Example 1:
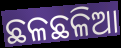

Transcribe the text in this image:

ଛଳଛଳିଆ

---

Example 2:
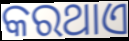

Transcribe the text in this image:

କରଥାଏ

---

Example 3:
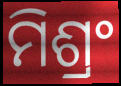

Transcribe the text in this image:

ମିଶ୍ରଂ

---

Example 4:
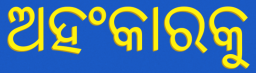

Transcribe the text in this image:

ଅହଂକାରକୁ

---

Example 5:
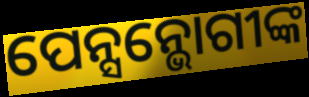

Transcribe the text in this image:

ପେନ୍ସନ୍ଭୋଗୀଙ୍କ